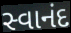
સ્વાનંદ